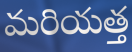
మరియత్త